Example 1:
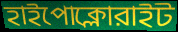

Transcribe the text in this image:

হাইপোক্লোরাইট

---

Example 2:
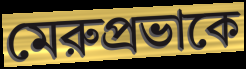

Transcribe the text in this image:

মেরুপ্রভাকে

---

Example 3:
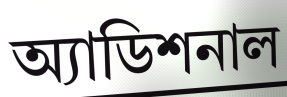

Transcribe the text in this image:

অ্যাডিশনাল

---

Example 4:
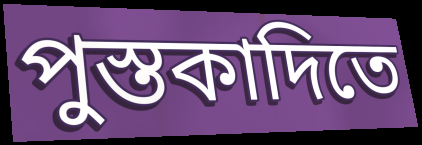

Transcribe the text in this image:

পুস্তকাদিতে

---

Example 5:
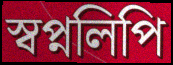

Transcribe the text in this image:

স্বপ্নলিপি